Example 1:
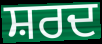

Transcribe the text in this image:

ਸ਼ਰਦ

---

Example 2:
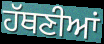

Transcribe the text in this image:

ਹੱਥਣੀਆਂ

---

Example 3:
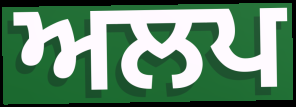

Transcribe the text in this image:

ਅਲਪ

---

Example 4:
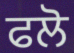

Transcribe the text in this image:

ਫਲੋ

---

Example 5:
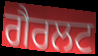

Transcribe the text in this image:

ਗੈਰਲਟ